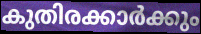
കുതിരക്കാർക്കും